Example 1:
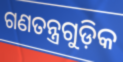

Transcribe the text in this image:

ଗଣତନ୍ତ୍ରଗୁଡ଼ିକ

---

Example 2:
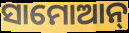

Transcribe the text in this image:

ସାମୋଆନ୍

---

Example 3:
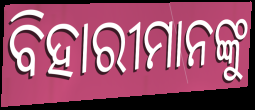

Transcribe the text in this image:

ବିହାରୀମାନଙ୍କୁ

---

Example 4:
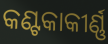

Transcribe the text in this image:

କଣ୍ଟକାକୀର୍ଣ୍ଣ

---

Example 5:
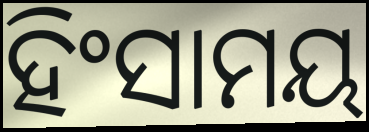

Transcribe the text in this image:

ହିଂସାମୟ